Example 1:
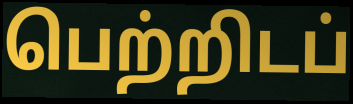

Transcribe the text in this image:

பெற்றிடப்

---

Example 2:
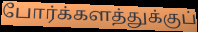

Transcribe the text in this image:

போர்க்களத்துக்குப்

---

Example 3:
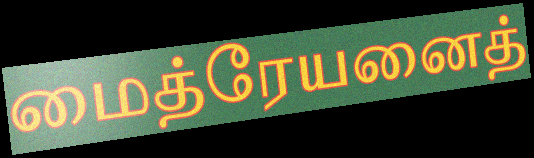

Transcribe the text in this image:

மைத்ரேயனைத்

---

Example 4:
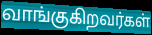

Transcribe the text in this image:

வாங்குகிறவர்கள்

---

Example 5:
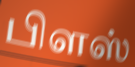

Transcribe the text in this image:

பிளஸ்